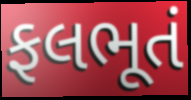
ફલભૂતં